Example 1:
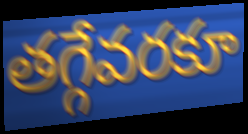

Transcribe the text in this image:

తగ్గేవరకూ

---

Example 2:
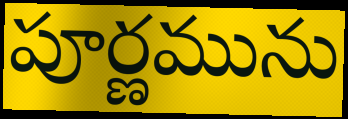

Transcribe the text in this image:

పూర్ణమును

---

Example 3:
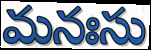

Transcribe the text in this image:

మనఃసు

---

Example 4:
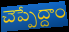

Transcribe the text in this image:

చెప్పేద్దాం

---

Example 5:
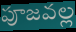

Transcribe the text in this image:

పూజవల్ల